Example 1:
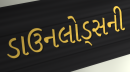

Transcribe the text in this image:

ડાઉનલોડ્સની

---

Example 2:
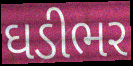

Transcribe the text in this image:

ઘડીભર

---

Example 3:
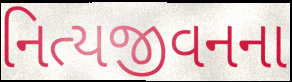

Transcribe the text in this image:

નિત્યજીવનના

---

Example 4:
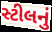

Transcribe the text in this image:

સ્ટીલનું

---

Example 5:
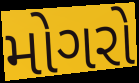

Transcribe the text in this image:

મોગરો